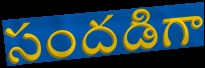
సందడిగా